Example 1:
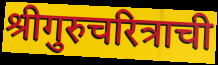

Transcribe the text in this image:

श्रीगुरुचरित्राची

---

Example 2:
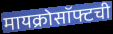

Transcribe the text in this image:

मायक्रोसॉफ्टची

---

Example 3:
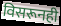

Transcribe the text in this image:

विसरूनही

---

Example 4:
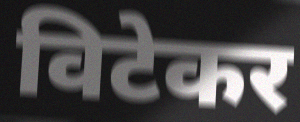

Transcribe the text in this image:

विटेकर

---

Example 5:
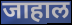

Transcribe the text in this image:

जाहाल